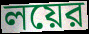
লয়ের